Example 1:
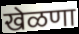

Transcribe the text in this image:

खेळणा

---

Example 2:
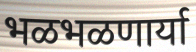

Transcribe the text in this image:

भळभळणार्या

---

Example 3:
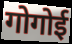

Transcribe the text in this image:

गोगोई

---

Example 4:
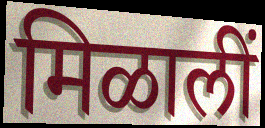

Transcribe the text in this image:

मिळालीं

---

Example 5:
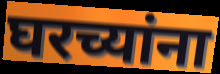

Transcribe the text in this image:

घरच्यांना